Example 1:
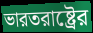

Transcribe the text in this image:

ভারতরাষ্ট্রের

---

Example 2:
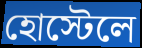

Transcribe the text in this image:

হোস্টেলে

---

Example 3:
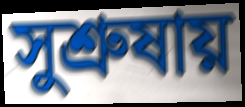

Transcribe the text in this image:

সুশ্রুষায়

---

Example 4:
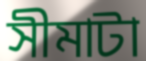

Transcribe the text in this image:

সীমাটা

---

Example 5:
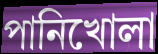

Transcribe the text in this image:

পানিখোলা